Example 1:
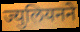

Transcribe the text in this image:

ज्युलियनने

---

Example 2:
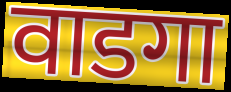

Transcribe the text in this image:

वाडगा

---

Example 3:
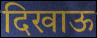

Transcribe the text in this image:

दिखाऊ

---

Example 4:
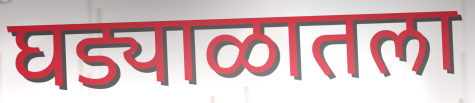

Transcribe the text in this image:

घड्याळातला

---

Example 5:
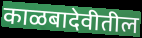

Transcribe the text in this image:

काळबादेवीतील